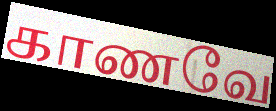
காணவே